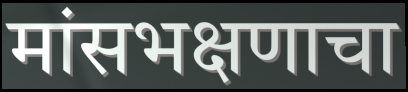
मांसभक्षणाचा